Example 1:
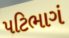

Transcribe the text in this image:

પટિભાગં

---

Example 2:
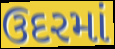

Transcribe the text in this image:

ઉદરમાં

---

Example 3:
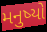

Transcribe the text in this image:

મનુષ્યો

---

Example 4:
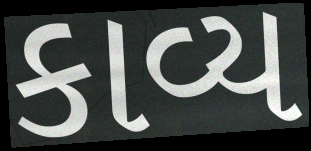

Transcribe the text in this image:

કાવ્ય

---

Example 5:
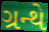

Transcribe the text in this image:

ગ્રન્થે